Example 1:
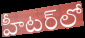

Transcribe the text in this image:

హీటర్‌లో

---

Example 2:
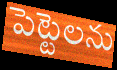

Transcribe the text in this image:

పెట్టెలను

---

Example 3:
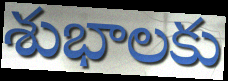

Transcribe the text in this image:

శుభాలకు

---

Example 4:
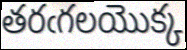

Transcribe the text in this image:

తరఁగలయొక్క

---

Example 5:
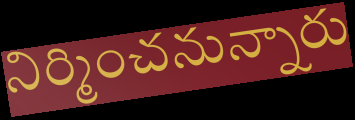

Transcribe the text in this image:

నిర్మించనున్నారు